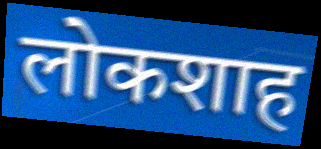
लोकशाह